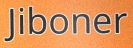
Jiboner